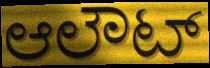
ಆಲೌಟ್